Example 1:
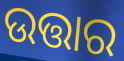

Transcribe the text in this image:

ଉତ୍ତାର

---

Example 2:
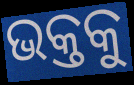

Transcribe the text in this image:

ଭକ୍ତକୁ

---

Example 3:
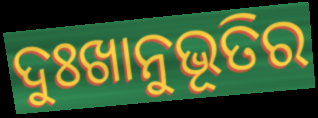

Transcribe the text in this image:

ଦୁଃଖାନୁଭୂତିର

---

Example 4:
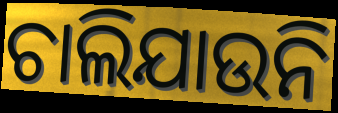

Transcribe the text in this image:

ଚାଲିଯାଉନି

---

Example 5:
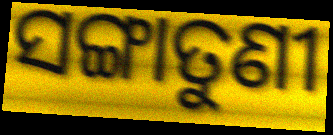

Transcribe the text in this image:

ସଙ୍ଗାତୁଣୀ